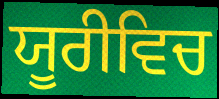
ਯੂਰੀਵਿਚ